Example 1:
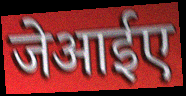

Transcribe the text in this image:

जेआईए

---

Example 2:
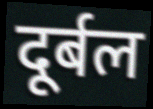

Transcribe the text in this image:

दूर्बल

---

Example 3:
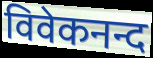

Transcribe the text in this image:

विवेकनन्द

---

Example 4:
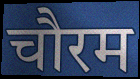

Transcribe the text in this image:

चौरम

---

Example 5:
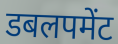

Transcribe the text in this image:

डबलपमेंट